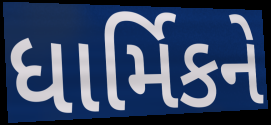
ધાર્મિકને